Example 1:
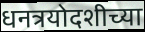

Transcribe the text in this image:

धनत्रयोदशीच्या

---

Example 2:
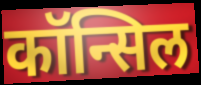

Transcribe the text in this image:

कॉन्सिल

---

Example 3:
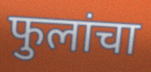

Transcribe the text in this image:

फुलांचा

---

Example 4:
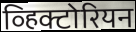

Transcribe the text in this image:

व्हिक्टोरियन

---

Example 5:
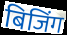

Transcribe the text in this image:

बिजिंग